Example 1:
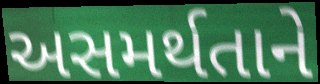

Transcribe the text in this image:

અસમર્થતાને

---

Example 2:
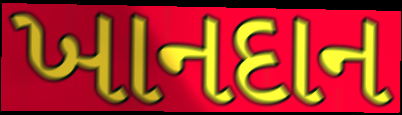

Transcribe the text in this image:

ખાનદાન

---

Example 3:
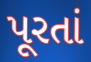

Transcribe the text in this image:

પૂરતાં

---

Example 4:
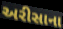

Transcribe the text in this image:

અરીસાના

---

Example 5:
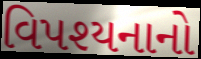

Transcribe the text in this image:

વિપશ્યનાનો